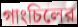
গাংচিলের